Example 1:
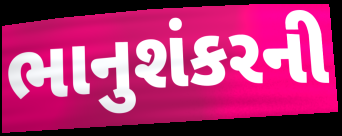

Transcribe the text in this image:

ભાનુશંકરની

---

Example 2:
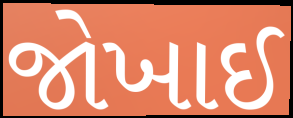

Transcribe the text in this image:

જોખાઈ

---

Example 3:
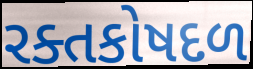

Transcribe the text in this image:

રક્તકોષદળ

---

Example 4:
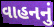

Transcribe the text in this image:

વાહનનું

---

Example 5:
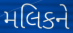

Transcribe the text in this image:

મલિકને